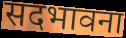
सदभावना